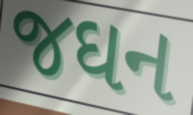
જઘન